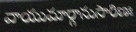
వాయుమార్గానుసారిణః